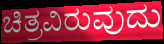
ಚಿತ್ರವಿರುವುದು